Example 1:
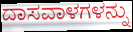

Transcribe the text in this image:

ದಾಸವಾಳಗಳನ್ನು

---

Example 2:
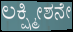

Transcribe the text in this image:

ಲಕ್ಷ್ಮೀಶನೇ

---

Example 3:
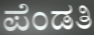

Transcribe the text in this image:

ಪೆಂಡತಿ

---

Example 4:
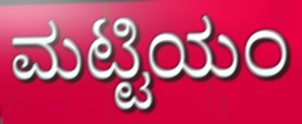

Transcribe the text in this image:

ಮಟ್ಟಿಯಂ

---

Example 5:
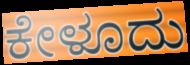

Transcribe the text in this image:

ಕೇಳೂದು